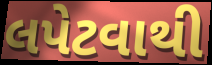
લપેટવાથી